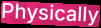
Physically